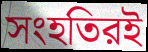
সংহতিরই